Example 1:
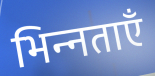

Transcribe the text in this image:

भिन्नताएँ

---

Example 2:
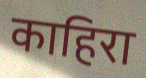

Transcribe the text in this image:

काहिरा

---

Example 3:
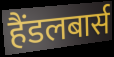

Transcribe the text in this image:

हैंडलबार्स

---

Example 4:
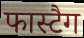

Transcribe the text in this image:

फास्टैग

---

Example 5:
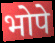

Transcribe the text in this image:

भोपे